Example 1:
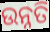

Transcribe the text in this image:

ଉନ୍ନତି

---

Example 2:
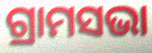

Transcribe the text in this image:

ଗ୍ରାମସଭା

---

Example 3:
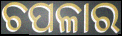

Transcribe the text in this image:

ଚପଳାର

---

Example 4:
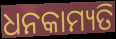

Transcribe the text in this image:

ଧନକାମ୍ୟତି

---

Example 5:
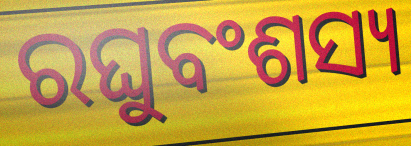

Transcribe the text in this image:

ରଘୁବଂଶସ୍ୟ